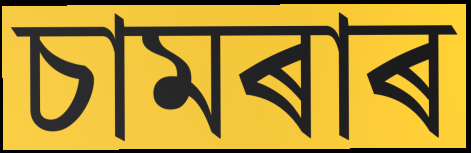
চামৰাৰ